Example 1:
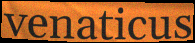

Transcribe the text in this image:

venaticus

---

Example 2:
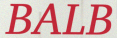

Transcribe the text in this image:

BALB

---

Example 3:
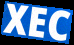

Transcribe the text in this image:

XEC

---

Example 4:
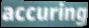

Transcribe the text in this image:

accuring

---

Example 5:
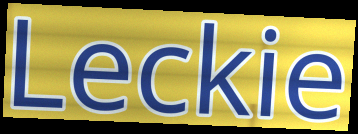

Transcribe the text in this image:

Leckie